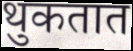
थुकतात